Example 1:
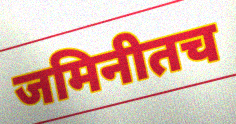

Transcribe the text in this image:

जमिनीतच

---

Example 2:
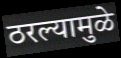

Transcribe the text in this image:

ठरल्यामुळे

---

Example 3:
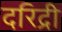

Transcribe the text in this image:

दरिद्री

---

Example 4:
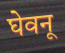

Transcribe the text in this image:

घेवनू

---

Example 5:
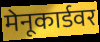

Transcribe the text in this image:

मेनूकार्डवर